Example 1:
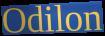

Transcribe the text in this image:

Odilon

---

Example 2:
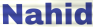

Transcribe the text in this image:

Nahid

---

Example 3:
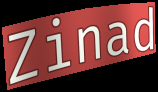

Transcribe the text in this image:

Zinad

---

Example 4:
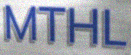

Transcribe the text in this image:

MTHL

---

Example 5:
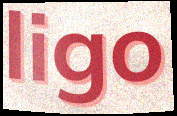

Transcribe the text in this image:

ligo